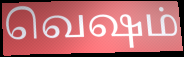
வெஷம்